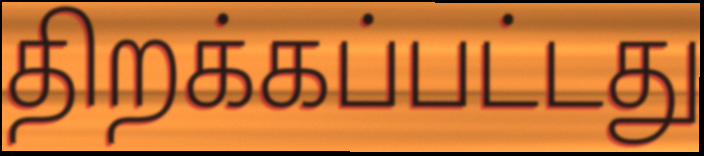
திறக்கப்பட்டது